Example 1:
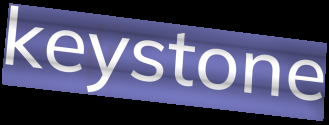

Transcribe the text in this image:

keystone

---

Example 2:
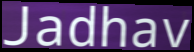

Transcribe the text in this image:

Jadhav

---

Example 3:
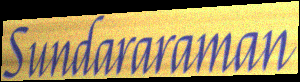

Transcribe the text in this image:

Sundararaman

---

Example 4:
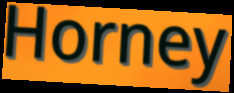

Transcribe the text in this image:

Horney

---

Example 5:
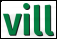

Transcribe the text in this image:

vill